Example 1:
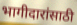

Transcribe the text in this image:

भागीदारांसाठी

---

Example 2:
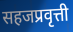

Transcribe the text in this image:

सहजप्रवृत्ती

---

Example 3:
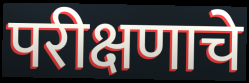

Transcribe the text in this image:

परीक्षणाचे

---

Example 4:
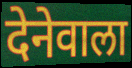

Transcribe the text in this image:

देनेवाला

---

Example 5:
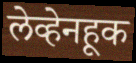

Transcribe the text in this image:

लेव्हेनहूक